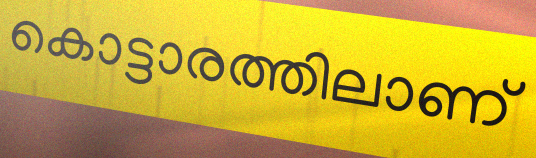
കൊട്ടാരത്തിലാണ്